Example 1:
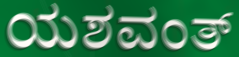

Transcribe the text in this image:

ಯಶವಂತ್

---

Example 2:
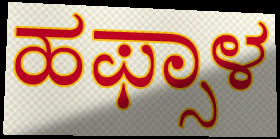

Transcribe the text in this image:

ಹಫ್ಸಾಳ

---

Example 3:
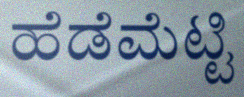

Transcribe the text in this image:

ಹೆಡೆಮೆಟ್ಟಿ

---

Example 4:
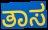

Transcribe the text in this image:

ತಾಸ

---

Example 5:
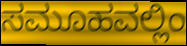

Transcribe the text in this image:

ಸಮೂಹವಲ್ಲಿಂ